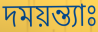
দময়ন্ত্যাঃ